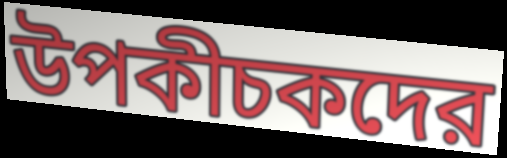
উপকীচকদের